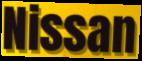
Nissan